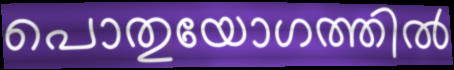
പൊതുയോഗത്തിൽ